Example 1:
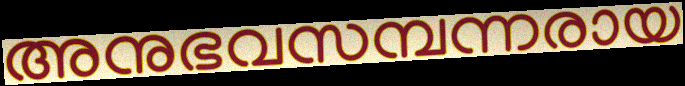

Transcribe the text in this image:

അനുഭവസമ്പന്നരായ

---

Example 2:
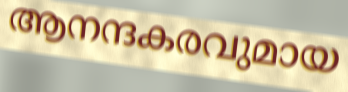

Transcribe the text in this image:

ആനന്ദകരവുമായ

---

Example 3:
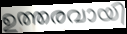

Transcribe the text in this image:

ഉത്തരവായി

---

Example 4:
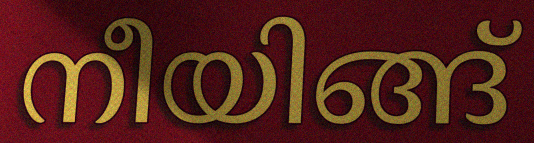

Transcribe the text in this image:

നീയിങ്ങ്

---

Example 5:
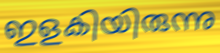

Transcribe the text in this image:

ഇളകിയിരുന്നു